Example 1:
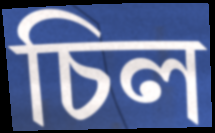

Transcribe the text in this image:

চিল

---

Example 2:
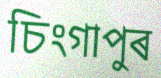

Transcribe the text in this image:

চিংগাপুৰ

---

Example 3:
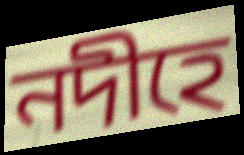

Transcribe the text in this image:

নদীহে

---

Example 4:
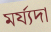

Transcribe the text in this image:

মৰ্য্যদা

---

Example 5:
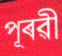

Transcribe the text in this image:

পূৰৱী